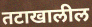
तटाखालील